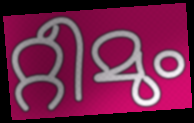
റ്റീമും